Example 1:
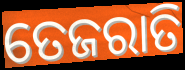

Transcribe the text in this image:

ତେଜରାତି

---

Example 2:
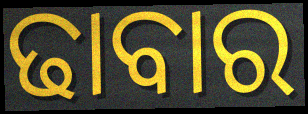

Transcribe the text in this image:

ଢାବାର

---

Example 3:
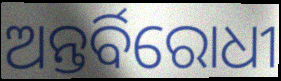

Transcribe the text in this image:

ଅନ୍ତର୍ବିରୋଧୀ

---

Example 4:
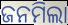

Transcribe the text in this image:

ଜନମିଲା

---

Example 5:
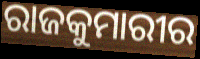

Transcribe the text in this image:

ରାଜକୁମାରୀର